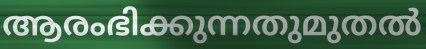
ആരംഭിക്കുന്നതുമുതൽ